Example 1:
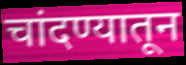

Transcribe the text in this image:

चांदण्यातून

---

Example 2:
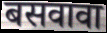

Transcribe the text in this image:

बसवावा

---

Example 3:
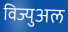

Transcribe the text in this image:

विज्युअल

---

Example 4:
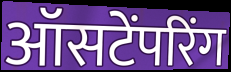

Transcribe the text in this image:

ऑसटेंपरिंग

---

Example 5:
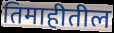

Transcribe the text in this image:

तिमाहीतील